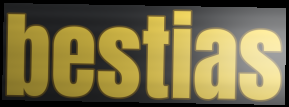
bestias